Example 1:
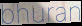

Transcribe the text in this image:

bhuran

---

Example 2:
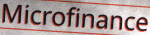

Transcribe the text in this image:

Microfinance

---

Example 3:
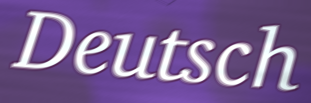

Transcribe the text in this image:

Deutsch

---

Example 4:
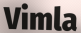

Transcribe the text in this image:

Vimla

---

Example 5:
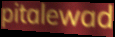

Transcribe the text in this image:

pitalewad